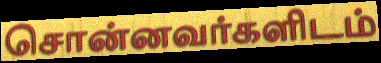
சொன்னவர்களிடம்